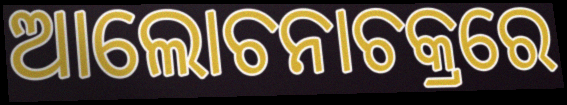
ଆଲୋଚନାଚକ୍ରରେ